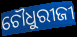
ଚୌଧୁରୀଜୀ